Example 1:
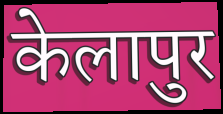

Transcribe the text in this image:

केलापुर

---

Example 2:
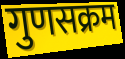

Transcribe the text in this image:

गुणसक्रम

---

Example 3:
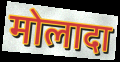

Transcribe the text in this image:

मोलादा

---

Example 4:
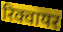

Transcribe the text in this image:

रिक्वायर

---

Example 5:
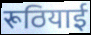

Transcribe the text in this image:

रूठियाई